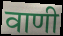
वाणी